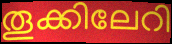
തൂക്കിലേറി